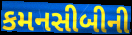
કમનસીબીની